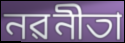
নৱনীতা